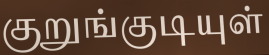
குறுங்குடியுள்